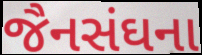
જૈનસંઘના